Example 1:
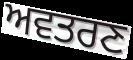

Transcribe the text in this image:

ਅਵਤਰਣ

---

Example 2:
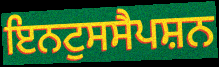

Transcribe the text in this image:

ਇਨਟੁਸਸੈਪਸ਼ਨ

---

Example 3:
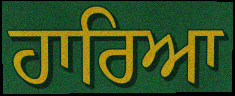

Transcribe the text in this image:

ਹਾਰਿਆ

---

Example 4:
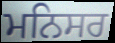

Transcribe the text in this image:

ਮਨਿਸਰ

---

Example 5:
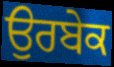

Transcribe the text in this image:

ਉਰਬੇਕ